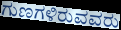
ಗುಣಗಳಿರುವವರು